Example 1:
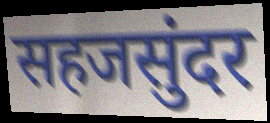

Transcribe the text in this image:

सहजसुंदर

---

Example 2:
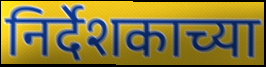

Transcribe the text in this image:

निर्देशकाच्या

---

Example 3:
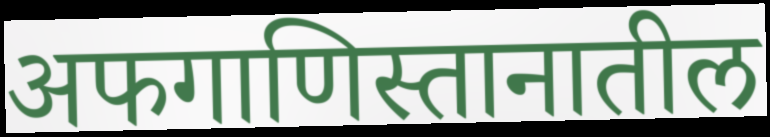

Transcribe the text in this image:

अफगाणिस्तानातील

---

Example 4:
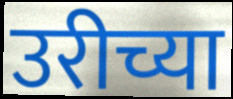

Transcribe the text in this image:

उरीच्या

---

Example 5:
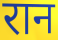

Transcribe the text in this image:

रान